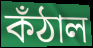
কঁঠাল